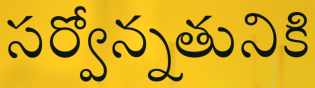
సర్వోన్నతునికి